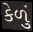
કેળું